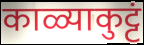
काळ्याकुट्टं